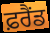
ਫ਼ਰੈਂਡ